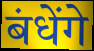
बंधेंगे